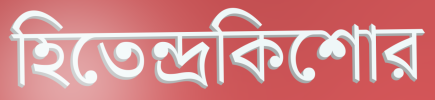
হিতেন্দ্রকিশোর